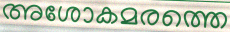
അശോകമരത്തെ